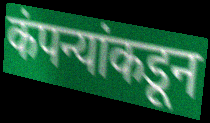
कंपन्यांकडून